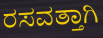
ರಸವತ್ತಾಗಿ